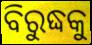
ବିରୁଦ୍ଧକୁ